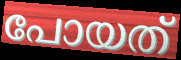
പോയത്